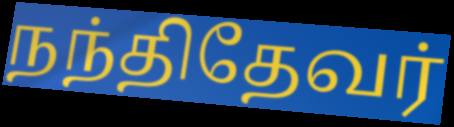
நந்திதேவர்